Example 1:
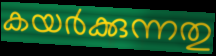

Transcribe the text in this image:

കയർക്കുന്നതു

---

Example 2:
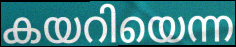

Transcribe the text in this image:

കയറിയെന്ന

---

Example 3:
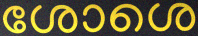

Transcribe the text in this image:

ശോശെ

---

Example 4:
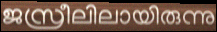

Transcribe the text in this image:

ജസ്രീലിലായിരുന്നു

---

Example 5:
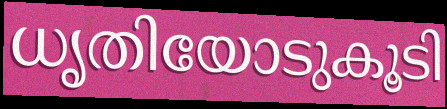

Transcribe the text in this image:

ധൃതിയോടുകൂടി